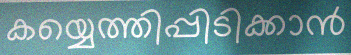
കയ്യെത്തിപ്പിടിക്കാൻ